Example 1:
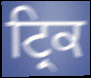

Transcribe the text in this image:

ਟ੍ਰਿਕ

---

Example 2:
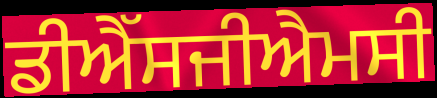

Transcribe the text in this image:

ਡੀਐੱਸਜੀਐਮਸੀ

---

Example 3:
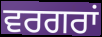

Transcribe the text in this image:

ਵਰਗਰਾਂ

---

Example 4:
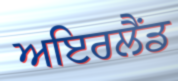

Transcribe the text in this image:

ਅਇਰਲੈਂਡ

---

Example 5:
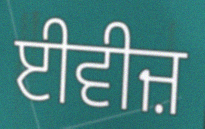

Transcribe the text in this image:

ਈਵੀਜ਼